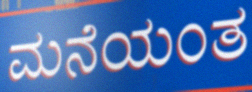
ಮನೆಯಂತ